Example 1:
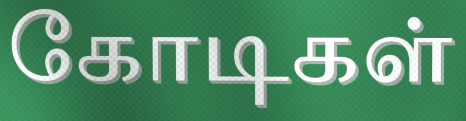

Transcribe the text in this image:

கோடிகள்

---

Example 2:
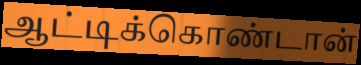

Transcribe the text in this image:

ஆட்டிக்கொண்டான்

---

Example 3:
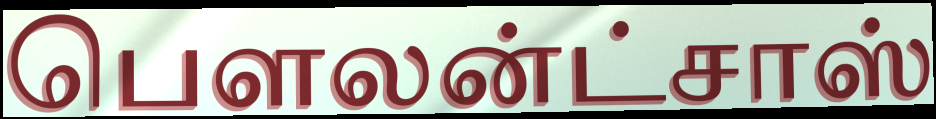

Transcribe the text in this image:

பௌலன்ட்சாஸ்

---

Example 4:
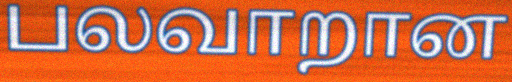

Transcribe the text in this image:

பலவாறான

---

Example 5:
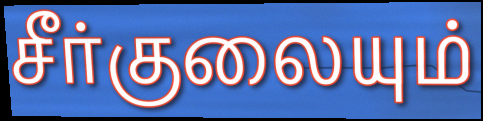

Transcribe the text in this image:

சீர்குலையும்